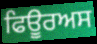
ਫਿਊਰਅਸ